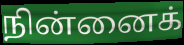
நின்னைக்